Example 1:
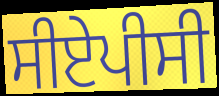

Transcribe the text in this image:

ਸੀਏਪੀਸੀ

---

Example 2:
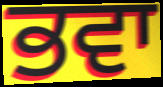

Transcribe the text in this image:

ਭਵਾ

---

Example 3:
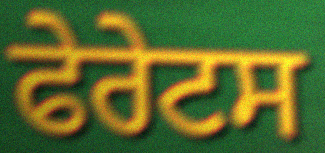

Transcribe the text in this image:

ਫੇਰੇਟਸ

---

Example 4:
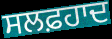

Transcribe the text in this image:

ਸਲਫ਼ਹਾਦ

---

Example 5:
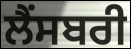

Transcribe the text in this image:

ਲੈਂਸਬਰੀ